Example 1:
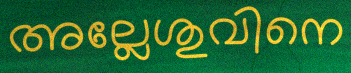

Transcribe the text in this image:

അല്ലേശുവിനെ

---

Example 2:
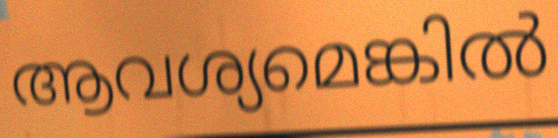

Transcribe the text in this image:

ആവശ്യമെങ്കിൽ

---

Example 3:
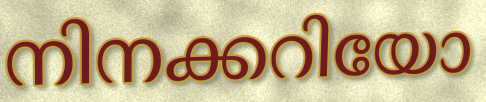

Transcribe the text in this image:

നിനക്കറിയോ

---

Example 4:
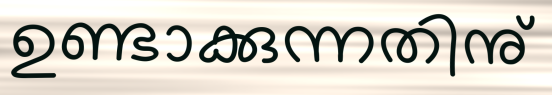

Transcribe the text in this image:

ഉണ്ടാക്കുന്നതിനു്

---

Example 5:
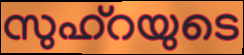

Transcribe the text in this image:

സുഹ്റയുടെ